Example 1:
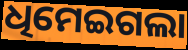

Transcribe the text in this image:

ଧିମେଇଗଲା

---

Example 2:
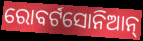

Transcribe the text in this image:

ରୋବର୍ଟସୋନିଆନ୍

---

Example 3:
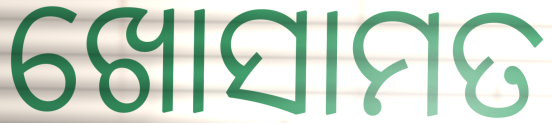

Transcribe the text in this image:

ଖୋସାମତ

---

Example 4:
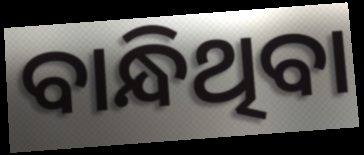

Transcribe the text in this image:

ବାନ୍ଧିଥିବା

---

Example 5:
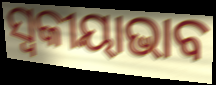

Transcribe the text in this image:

ସ୍ୱକୀୟାଭାବ